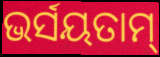
ଭର୍ସୟତାମ୍